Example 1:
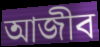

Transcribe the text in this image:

আজীব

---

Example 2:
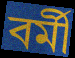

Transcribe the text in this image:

বর্মী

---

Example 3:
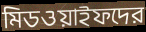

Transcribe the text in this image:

মিডওয়াইফদের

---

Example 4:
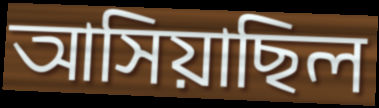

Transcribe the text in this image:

আসিয়াছিল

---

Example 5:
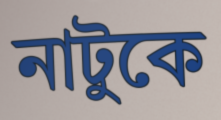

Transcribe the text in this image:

নাটুকে